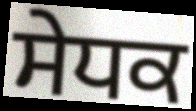
ਸੇਧਕ